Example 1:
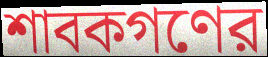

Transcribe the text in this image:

শাবকগণের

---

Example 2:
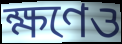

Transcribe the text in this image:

ক্ষণেও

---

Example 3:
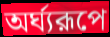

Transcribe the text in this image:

অর্ঘ্যরূপে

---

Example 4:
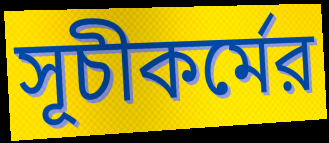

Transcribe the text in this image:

সূচীকর্মের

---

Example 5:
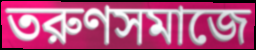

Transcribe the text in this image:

তরুণসমাজে